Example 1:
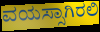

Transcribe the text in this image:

ವಯಸ್ಸಾಗಿರಲಿ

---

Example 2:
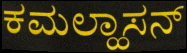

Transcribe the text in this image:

ಕಮಲ್ಹಾಸನ್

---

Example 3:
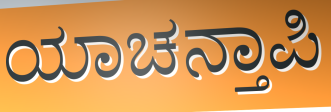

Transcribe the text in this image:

ಯಾಚನ್ತಾಪಿ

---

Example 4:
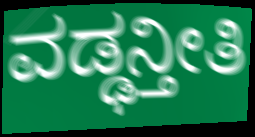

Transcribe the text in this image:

ವಡ್ಢನ್ತೀತಿ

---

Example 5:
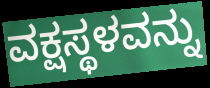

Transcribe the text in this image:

ವಕ್ಷಸ್ಥಳವನ್ನು